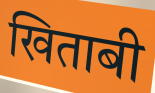
खिताबी